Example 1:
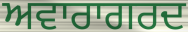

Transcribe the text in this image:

ਅਵਾਰਾਗਰਦ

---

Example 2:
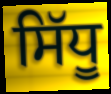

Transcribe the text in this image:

ਸਿੱਧੂ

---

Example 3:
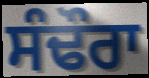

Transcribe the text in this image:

ਸੰਢੌਰਾ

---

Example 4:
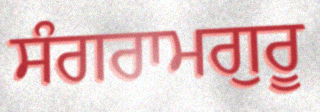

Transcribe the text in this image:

ਸੰਗਰਾਮਗੁਰੂ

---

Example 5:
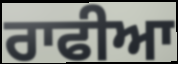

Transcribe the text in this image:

ਰਾਫੀਆ